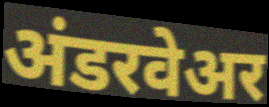
अंडरवेअर